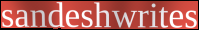
sandeshwrites